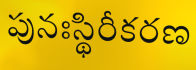
పునఃస్థిరీకరణ